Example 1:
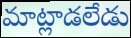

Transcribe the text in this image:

మాట్లాడలేడు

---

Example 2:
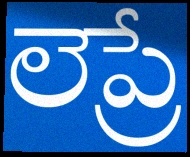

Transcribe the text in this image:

లెప్రే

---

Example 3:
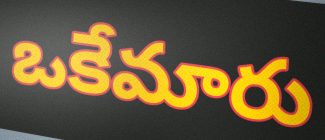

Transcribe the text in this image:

ఒకేమారు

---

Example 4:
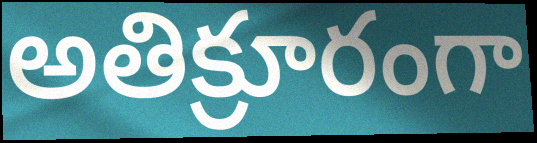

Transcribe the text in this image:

అతిక్రూరంగా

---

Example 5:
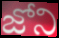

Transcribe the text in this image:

జోని